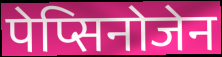
पेप्सिनोजेन